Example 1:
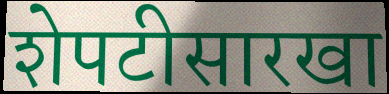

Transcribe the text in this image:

शेपटीसारखा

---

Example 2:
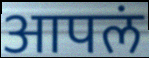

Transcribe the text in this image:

आपलं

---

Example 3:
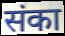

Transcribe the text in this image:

संका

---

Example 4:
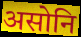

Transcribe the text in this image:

असोनि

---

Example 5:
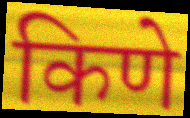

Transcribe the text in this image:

किणे